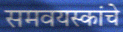
समवयस्कांचे